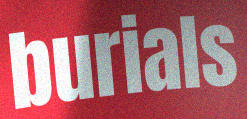
burials